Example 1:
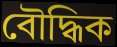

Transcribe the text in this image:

বৌদ্ধিক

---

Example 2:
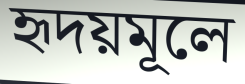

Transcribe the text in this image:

হৃদয়মূলে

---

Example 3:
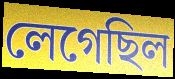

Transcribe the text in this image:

লেগেছিল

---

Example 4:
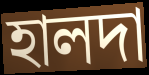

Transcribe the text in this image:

হালদা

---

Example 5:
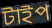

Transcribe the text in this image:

টাইপ